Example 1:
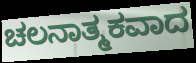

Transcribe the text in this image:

ಚಲನಾತ್ಮಕವಾದ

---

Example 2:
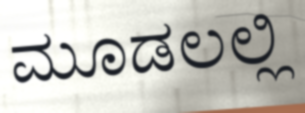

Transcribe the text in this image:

ಮೂಡಲಲ್ಲಿ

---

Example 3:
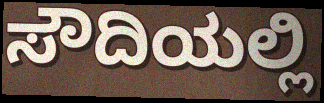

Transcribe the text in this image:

ಸೌದಿಯಲ್ಲಿ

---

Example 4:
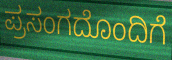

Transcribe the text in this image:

ಪ್ರಸಂಗದೊಂದಿಗೆ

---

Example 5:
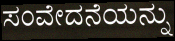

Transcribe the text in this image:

ಸಂವೇದನೆಯನ್ನು